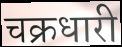
चक्रधारी